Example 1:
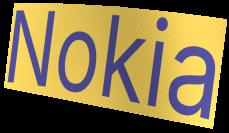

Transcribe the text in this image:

Nokia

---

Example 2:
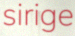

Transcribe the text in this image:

sirige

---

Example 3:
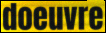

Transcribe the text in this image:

doeuvre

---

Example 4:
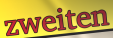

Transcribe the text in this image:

zweiten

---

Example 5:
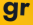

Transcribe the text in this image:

gr